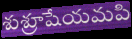
శుశ్రూషేయమపి